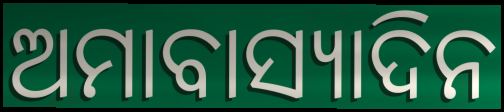
ଅମାବାସ୍ୟାଦିନ